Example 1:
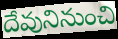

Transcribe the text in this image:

దేవునినుంచి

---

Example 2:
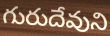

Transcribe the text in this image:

గురుదేవుని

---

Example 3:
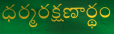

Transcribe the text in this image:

ధర్మరక్షణార్థం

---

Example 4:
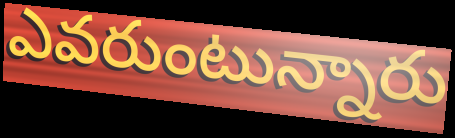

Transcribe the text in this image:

ఎవరుంటున్నారు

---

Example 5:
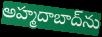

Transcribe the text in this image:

అహ్మదాబాద్‌ను